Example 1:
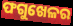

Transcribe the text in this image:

ଫଗୁଖେଳର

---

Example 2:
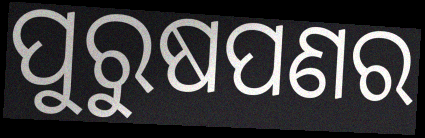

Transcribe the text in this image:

ପୁରୁଷପଣର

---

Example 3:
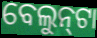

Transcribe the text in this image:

ବେଲୁନ୍‌ଟା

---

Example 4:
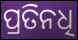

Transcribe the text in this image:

ପ୍ରତିନଧି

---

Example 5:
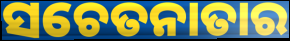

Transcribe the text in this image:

ସଚେତନାତାର